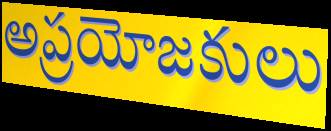
అప్రయోజకులు